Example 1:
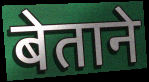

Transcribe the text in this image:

बेताने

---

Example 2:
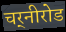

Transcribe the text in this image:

चर्नीरोड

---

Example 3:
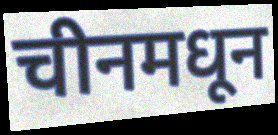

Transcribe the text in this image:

चीनमधून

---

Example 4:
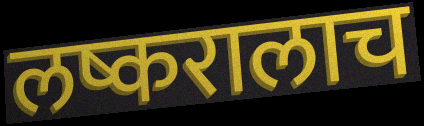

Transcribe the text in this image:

लष्करालाच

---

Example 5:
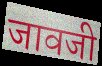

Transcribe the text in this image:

जावजी